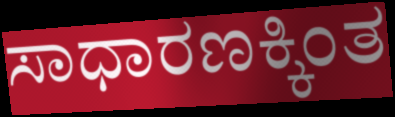
ಸಾಧಾರಣಕ್ಕಿಂತ